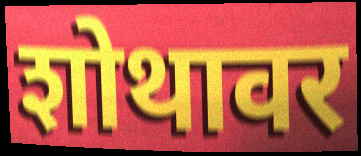
शोथावर